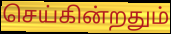
செய்கின்றதும்